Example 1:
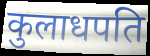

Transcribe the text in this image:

कुलाधपति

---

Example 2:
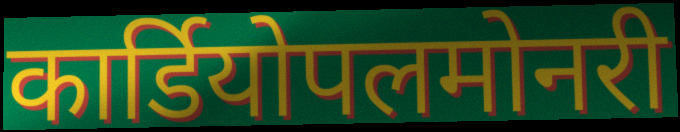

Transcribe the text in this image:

कार्डियोपलमोनरी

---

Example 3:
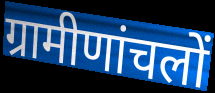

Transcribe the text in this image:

ग्रामीणांचलों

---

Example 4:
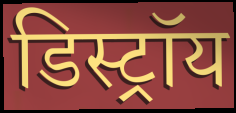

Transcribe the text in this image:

डिस्ट्रॉय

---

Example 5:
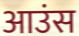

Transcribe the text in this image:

आउंस